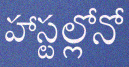
హాస్టల్లోనో